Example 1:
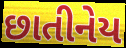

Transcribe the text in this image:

છાતીનેય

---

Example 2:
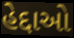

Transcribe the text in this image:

હેદ્દાઓ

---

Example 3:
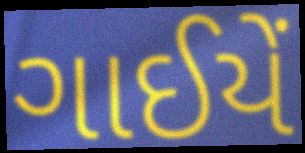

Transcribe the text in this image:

ગાઈયેં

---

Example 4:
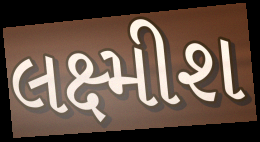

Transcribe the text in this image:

લક્ષ્મીશ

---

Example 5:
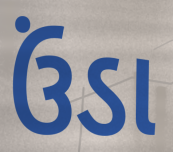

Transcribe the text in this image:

ઉંડા